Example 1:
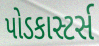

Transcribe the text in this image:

પોડકાસ્ટર્સ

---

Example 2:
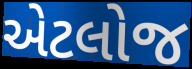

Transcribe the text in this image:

એટલોજ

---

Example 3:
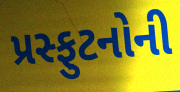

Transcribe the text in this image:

પ્રસ્ફુટનોની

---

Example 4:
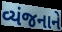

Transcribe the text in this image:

વ્યંજનાને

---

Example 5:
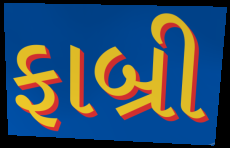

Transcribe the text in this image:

ફાબ્રી